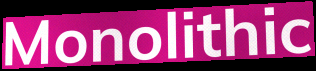
Monolithic